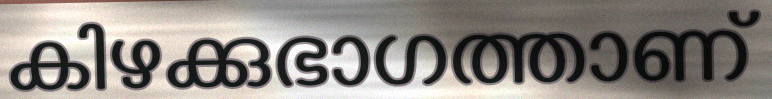
കിഴക്കുഭാഗത്താണ്